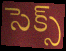
సెక్స్